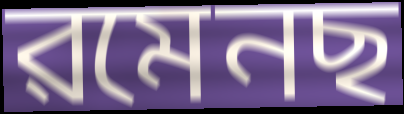
ৱমেনছ